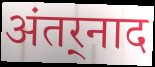
अंतर्नाद